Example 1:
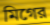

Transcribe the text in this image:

মিগের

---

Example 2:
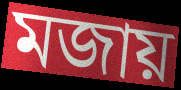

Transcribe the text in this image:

মজায়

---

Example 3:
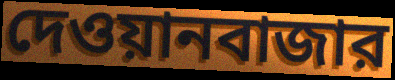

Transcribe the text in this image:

দেওয়ানবাজার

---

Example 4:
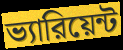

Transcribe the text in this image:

ভ্যারিয়েন্ট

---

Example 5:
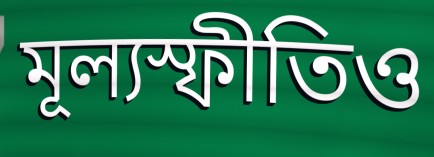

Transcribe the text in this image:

মূল্যস্ফীতিও